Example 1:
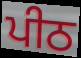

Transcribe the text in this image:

ਪੀਠ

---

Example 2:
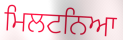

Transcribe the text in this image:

ਮਿਲਟਨਿਆ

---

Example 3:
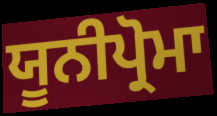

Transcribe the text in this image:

ਯੂਨੀਪ੍ਰੋਮਾ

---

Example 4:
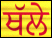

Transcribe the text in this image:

ਥੱਲੇ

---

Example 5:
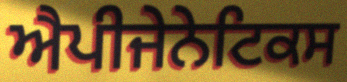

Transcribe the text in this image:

ਐਪੀਜੇਨੇਟਿਕਸ